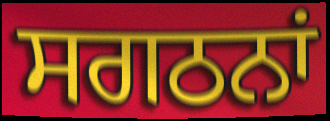
ਸਗਠਨਾਂ